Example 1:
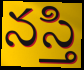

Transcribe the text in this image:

నస్తి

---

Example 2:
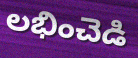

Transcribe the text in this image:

లభించెడి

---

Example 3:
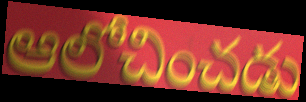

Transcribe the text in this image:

ఆలోచించడు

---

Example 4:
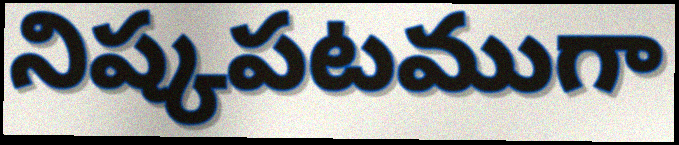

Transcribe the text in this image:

నిష్కపటముగా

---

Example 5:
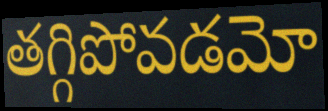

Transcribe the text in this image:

తగ్గిపోవడమో